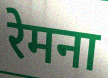
रेमना